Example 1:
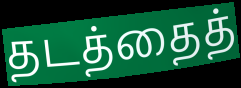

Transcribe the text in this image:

தடத்தைத்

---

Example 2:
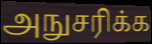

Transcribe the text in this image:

அநுசரிக்க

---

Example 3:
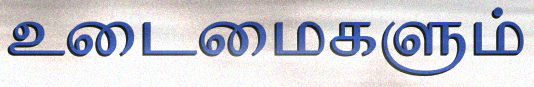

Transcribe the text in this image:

உடைமைகளும்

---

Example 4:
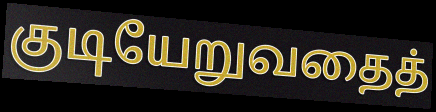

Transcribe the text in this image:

குடியேறுவதைத்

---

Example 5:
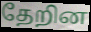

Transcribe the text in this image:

தேறின